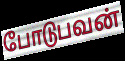
போடுபவன்